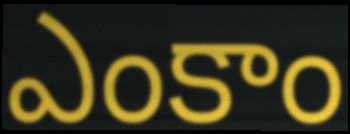
ఎంకాం